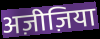
अज़ीज़िया